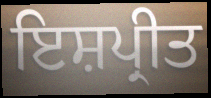
ਇਸ਼ਪ੍ਰੀਤ